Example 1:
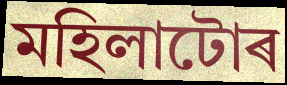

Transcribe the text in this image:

মহিলাটোৰ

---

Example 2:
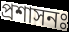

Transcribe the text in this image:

প্ৰশাসনঃ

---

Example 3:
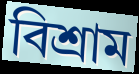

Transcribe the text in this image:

বিশ্ৰাম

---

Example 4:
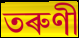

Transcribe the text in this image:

তৰুণী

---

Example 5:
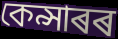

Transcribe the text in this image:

কেন্সাৰৰ